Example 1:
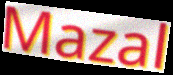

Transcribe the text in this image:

Mazal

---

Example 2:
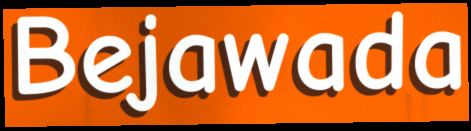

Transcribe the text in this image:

Bejawada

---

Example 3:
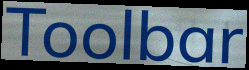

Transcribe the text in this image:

Toolbar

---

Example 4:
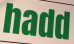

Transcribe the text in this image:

hadd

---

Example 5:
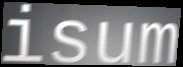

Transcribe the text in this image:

isum